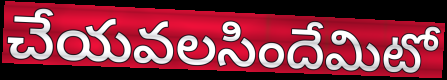
చేయవలసిందేమిటో